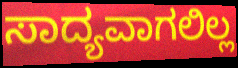
ಸಾದ್ಯವಾಗಲಿಲ್ಲ